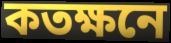
কতক্ষনে